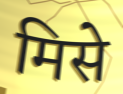
मिसे